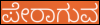
ಪೇರಾಗುವ